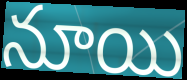
నూయి